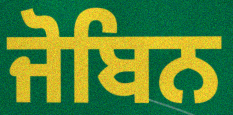
ਜੋਬਿਨ